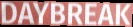
DAYBREAK